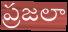
ప్రజలా